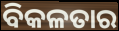
ବିକଳତାର